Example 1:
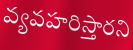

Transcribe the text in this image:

వ్యవహరిస్తారని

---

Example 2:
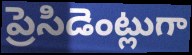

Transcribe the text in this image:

ప్రెసిడెంట్లుగా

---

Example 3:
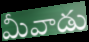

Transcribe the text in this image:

మీవాడు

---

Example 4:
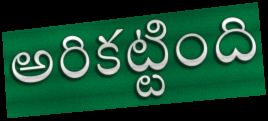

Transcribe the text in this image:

అరికట్టింది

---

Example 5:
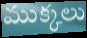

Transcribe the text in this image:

ముక్కలు